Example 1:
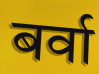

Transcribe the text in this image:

बर्वा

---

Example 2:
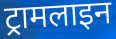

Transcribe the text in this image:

ट्रामलाइन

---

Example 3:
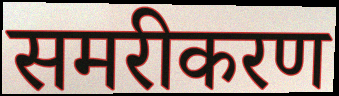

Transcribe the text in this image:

समरीकरण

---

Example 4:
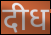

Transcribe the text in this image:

दीध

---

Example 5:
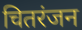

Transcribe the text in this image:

चितरंजन